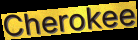
Cherokee